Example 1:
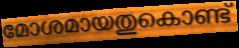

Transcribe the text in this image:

മോശമായതുകൊണ്ട്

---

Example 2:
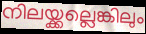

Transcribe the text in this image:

നിലയ്ക്കല്ലെങ്കിലും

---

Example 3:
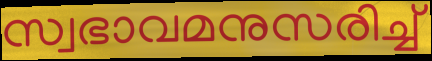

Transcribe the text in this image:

സ്വഭാവമനുസരിച്ച്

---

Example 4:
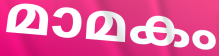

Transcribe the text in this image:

മാമകം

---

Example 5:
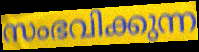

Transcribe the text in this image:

സംഭവിക്കുന്ന